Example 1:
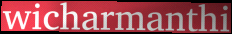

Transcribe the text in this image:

wicharmanthi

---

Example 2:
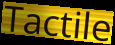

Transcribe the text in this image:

Tactile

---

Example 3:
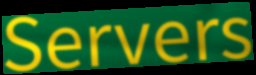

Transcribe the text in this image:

Servers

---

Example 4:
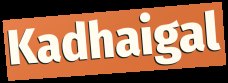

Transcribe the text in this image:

Kadhaigal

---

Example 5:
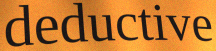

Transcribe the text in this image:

deductive